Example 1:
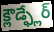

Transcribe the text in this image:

క్లౌడ్ఫ్లేర్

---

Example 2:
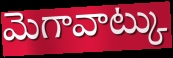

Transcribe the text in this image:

మెగావాట్కు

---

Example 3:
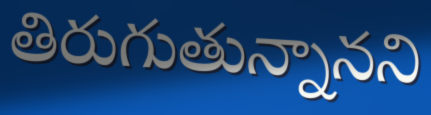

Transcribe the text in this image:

తిరుగుతున్నానని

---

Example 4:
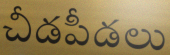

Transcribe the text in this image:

చీడపీడలు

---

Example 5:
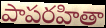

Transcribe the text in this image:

పాపరహితా